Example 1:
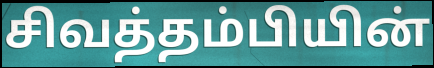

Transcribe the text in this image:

சிவத்தம்பியின்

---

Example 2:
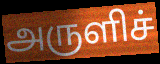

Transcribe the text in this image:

அருளிச்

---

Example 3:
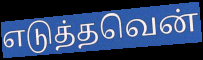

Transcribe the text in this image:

எடுத்தவென்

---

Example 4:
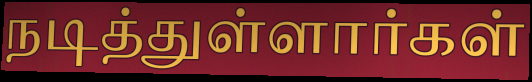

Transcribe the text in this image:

நடித்துள்ளார்கள்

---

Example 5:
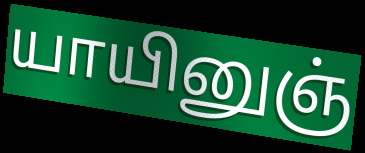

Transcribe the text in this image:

யாயினுஞ்